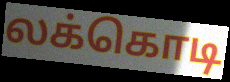
லக்கொடி